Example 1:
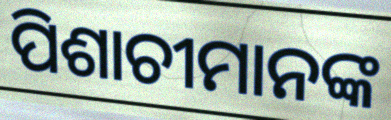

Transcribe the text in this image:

ପିଶାଚୀମାନଙ୍କ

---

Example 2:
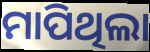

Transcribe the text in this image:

ମାପିଥିଲା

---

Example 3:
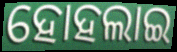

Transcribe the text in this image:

ହୋହଲାଇ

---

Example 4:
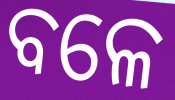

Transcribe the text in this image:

ବଳେ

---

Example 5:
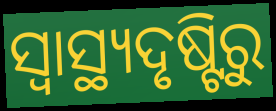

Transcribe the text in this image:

ସ୍ୱାସ୍ଥ୍ୟଦୃଷ୍ଟିରୁ